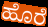
ಹೊರೆ